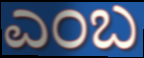
ಎಂಬ